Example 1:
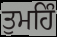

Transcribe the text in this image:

ਤੁਮਹਿੰ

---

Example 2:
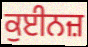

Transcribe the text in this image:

ਕੁਈਨਜ਼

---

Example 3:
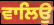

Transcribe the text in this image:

ਵਾਲਿਉ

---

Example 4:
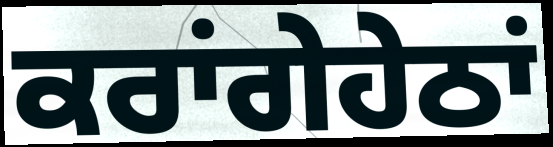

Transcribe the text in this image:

ਕਰਾਂਗੇਹੇਠਾਂ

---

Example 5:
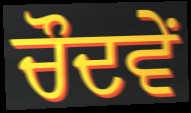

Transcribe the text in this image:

ਚੌਦਵੇਂ